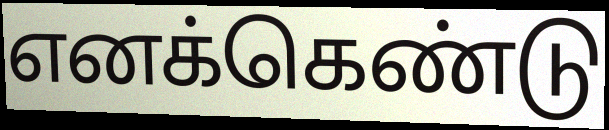
எனக்கெண்டு